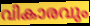
വികാരവും